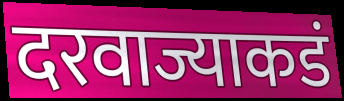
दरवाज्याकडं